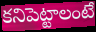
కనిపెట్టాలంటే